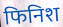
फिनिश